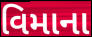
વિમાના